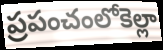
ప్రపంచంలోకెల్లా